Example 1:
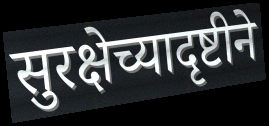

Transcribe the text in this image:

सुरक्षेच्यादृष्टीने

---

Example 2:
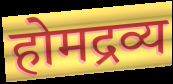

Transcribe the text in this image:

होमद्रव्य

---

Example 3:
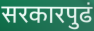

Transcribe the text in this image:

सरकारपुढं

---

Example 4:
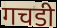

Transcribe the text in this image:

गचडी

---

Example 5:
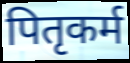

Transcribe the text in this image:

पितृकर्म